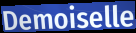
Demoiselle